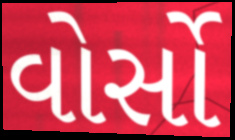
વોર્સો